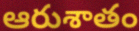
ఆరుశాతం